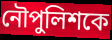
নৌপুলিশকে